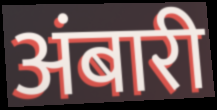
अंबारी